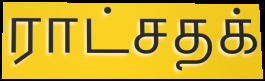
ராட்சதக்